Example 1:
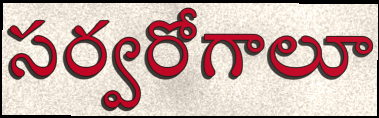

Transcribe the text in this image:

సర్వరోగాలూ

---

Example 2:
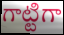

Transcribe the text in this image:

గాట్టిగా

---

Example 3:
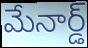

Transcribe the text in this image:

మేనార్డ్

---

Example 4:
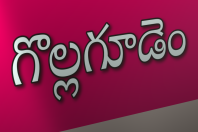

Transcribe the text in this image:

గొల్లగూడెం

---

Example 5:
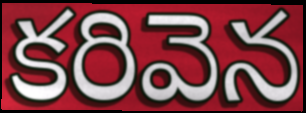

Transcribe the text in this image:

కరివెన